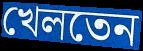
খেলতেন